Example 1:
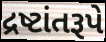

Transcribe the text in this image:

દ્રષ્ટાંતરૂપે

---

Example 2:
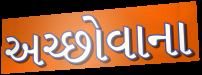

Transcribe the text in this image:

અચ્છોવાના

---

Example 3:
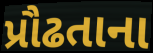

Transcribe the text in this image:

પ્રૌઢતાના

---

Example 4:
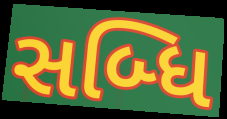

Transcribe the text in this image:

સબ્ધિ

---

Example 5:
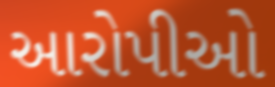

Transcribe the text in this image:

આરોપીઓ